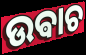
ଉଵାଚ